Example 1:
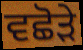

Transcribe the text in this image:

ਵਛੋੜੇ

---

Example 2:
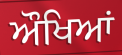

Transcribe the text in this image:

ਔਖਿਆਂ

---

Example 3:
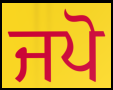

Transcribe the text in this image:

ਜਪੋ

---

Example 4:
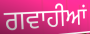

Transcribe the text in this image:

ਗਵਾਹੀਆਂ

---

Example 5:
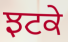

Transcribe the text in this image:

ਝਟਕੇ